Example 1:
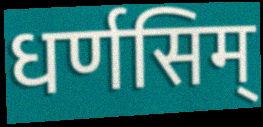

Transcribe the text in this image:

धर्णसिम्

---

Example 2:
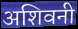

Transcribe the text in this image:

अशिवनी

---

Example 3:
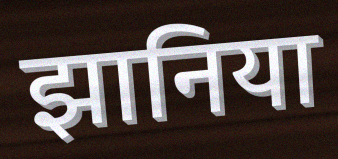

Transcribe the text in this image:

झानिया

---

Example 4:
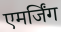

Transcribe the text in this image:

एमर्जिंग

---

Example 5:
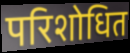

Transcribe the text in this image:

परिशोधित